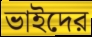
ভাইদের